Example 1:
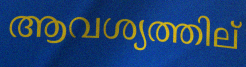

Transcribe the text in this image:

ആവശ്യത്തില്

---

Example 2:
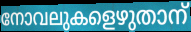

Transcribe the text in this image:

നോവലുകളെഴുതാന്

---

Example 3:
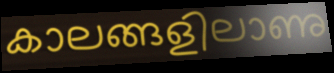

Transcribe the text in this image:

കാലങ്ങളിലാണു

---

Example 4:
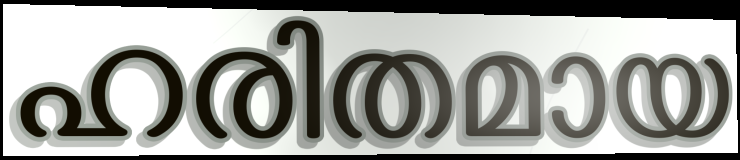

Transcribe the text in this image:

ഹരിതമായ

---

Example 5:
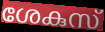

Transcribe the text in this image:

ശേകുസ്